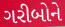
ગરીબોને